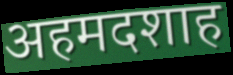
अहमदशाह